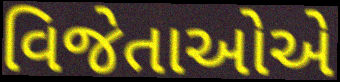
વિજેતાઓએ